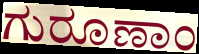
ಗುರೂಣಾಂ